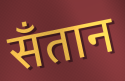
सँतान